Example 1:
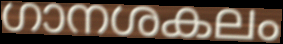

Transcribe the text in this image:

ഗാനശകലം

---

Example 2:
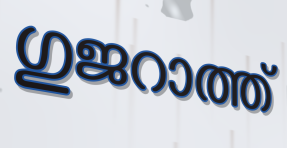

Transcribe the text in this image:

ഗുജറാത്ത്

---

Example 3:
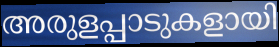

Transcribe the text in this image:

അരുളപ്പാടുകളായി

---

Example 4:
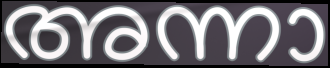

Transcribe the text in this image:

അന്നാ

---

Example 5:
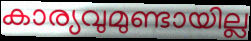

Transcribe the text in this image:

കാര്യവുമുണ്ടായില്ല